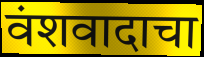
वंशवादाचा